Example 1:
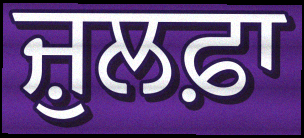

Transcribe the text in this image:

ਜ਼ੁਲਫ਼ਾ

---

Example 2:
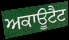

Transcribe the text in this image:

ਅਕਾਊਟੈਟ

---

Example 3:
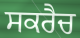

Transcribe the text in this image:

ਸਕਰੈਚ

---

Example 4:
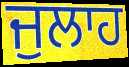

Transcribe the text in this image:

ਜੁਲਾਹ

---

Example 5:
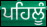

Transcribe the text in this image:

ਪਹਿਲੂੰ